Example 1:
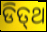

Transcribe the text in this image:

ଡିତ୍‍ଥ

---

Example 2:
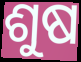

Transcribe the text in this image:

ଶୁଷ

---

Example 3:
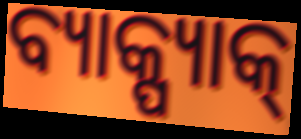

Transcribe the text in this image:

ବ୍ୟାକ୍ପ୍ୟାକ୍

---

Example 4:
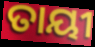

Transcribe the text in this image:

ତାୟୀ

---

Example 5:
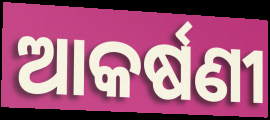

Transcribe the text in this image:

ଆକର୍ଷଣୀ